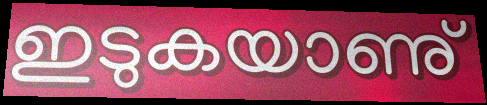
ഇടുകയാണു്